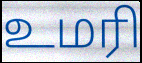
உமரி